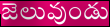
జెలువుండు